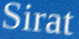
Sirat